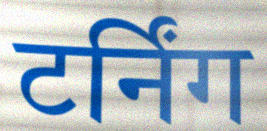
टर्निंग